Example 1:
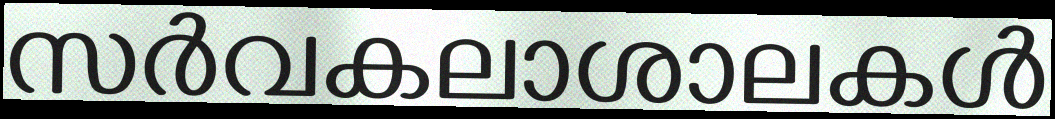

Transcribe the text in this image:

സർവകലാശാലകൾ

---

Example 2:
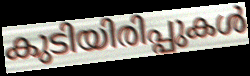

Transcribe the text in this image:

കുടിയിരിപ്പുകൾ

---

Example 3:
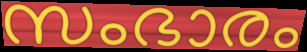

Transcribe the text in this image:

സംഭാരം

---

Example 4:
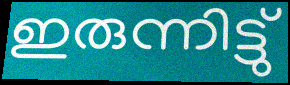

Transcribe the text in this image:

ഇരുന്നിട്ടു്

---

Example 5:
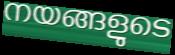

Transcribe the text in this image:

നയങ്ങളുടെ